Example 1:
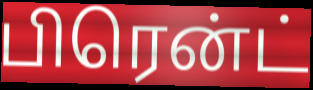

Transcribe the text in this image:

பிரென்ட்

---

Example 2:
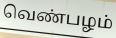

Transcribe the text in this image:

வெண்பழம்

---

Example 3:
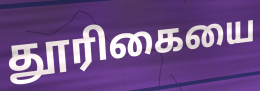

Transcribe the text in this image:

தூரிகையை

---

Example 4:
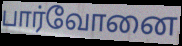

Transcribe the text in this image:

பார்வோனை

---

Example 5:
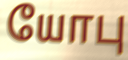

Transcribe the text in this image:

யோபு